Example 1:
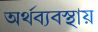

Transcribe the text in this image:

অর্থব্যবস্থায়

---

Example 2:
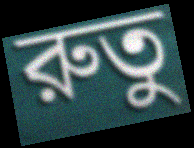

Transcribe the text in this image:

রুতু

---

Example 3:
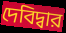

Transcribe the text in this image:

দেবিদ্বার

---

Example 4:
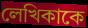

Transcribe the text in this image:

লেখিকাকে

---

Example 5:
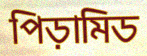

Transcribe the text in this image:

পিড়ামিড